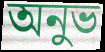
অনুভ